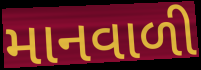
માનવાળી